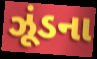
ઝૂંડના